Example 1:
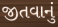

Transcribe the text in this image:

જીતવાનું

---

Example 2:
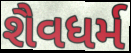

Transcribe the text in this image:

શૈવધર્મ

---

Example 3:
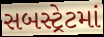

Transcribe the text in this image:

સબસ્ટ્રેટમાં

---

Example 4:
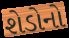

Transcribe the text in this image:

શેડોનો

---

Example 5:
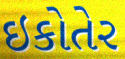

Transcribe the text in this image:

ઇકોતેર